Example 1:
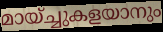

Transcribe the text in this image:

മായ്ച്ചുകളയാനും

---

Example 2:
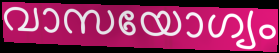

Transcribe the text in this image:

വാസയോഗ്യം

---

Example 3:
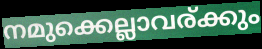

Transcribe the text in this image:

നമുക്കെല്ലാവര്ക്കും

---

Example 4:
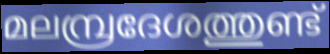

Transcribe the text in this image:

മലമ്പ്രദേശത്തുണ്ട്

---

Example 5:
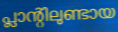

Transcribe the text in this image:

പ്ലാന്റിലുണ്ടായ